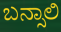
ಬನ್ಸಾಲಿ